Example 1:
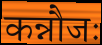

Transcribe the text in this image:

कन्नौजः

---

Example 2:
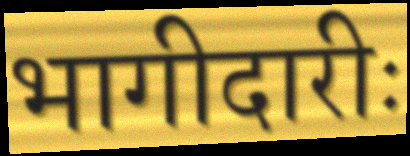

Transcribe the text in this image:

भागीदारीः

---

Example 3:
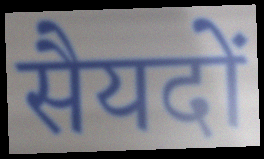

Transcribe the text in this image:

सैयदों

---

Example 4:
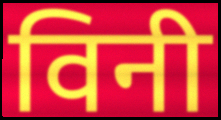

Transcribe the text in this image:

विनी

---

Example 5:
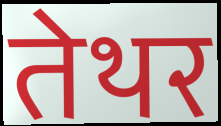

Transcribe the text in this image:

तेथर